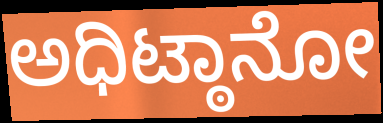
ಅಧಿಟ್ಠಾನೋ